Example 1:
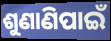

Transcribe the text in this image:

ଶୁଣାଣିପାଇଁ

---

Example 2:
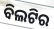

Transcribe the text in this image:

ବିଲଟିର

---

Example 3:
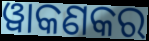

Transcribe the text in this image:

ୱାକଣକର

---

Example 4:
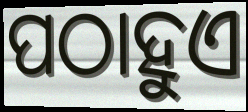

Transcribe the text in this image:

ପଠାହୁଏ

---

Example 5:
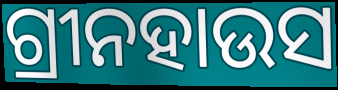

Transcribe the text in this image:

ଗ୍ରୀନହାଉସ